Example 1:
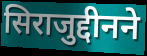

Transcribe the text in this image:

सिराजुद्दीनने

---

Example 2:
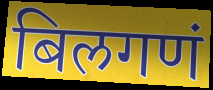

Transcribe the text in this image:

बिलगणं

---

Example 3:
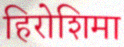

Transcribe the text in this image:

हिरोशिमा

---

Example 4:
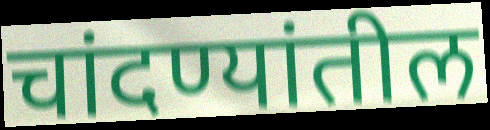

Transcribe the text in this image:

चांदण्यांतील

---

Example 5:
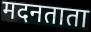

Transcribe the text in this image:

मदनताता